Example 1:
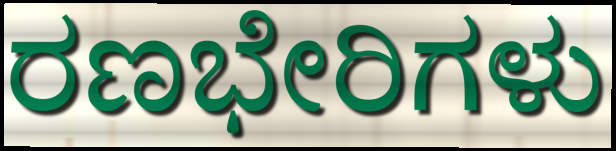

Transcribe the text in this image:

ರಣಭೇರಿಗಳು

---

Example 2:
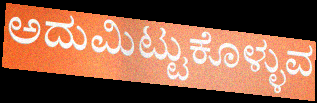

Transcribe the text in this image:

ಅದುಮಿಟ್ಟುಕೊಳ್ಳುವ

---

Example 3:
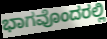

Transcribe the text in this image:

ಭಾಗವೊಂದರಲ್ಲಿ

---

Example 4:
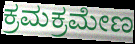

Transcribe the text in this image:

ಕ್ರಮಕ್ರಮೇಣ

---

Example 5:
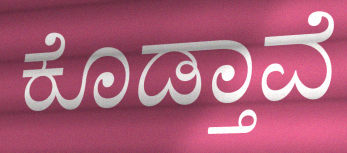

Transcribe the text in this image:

ಕೊಡ್ತಾವೆ